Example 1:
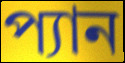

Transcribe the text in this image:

প্যান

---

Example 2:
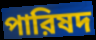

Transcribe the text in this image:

পারিষদ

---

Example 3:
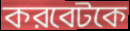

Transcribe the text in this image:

করবেটকে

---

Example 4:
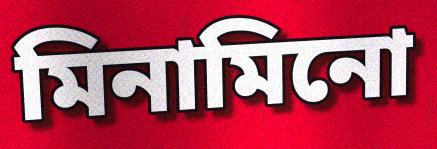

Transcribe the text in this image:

মিনামিনো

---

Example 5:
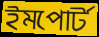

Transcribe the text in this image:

ইমপোর্ট